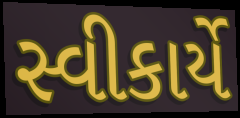
સ્વીકાર્યે